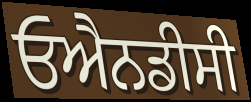
ਓਐਨਡੀਸੀ